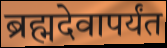
ब्रह्मदेवापर्यंत